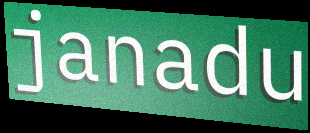
janadu